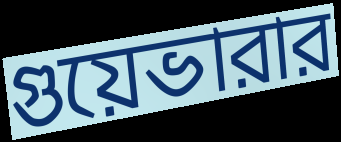
গুয়েভারার